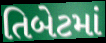
તિબેટમાં